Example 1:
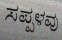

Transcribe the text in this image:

ಸಪ್ಪಳವು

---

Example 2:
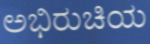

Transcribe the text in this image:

ಅಭಿರುಚಿಯ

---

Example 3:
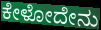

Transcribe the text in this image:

ಕೇಳೋದೇನು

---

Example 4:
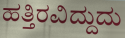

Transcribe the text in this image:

ಹತ್ತಿರವಿದ್ದುದು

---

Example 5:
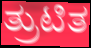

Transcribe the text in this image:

ತ್ರುಟಿತ